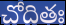
చోదితః